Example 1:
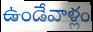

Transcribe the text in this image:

ఉండేవాళ్లం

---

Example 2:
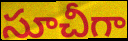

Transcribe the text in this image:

సూచీగా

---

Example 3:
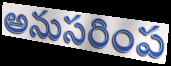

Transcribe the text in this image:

అనుసరింప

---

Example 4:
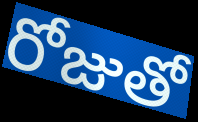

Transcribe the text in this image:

రోజుతో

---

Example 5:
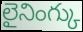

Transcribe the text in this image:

లైనింగ్కు